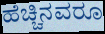
ಹೆಚ್ಚಿನವರೂ